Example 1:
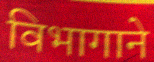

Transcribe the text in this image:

विभागाने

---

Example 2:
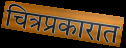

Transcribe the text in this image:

चित्रप्रकारात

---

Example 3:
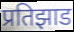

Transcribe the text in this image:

प्रतिझाड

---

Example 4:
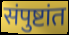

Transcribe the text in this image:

संपुष्टांत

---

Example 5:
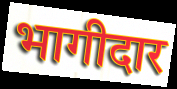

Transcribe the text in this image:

भागीदार